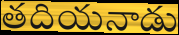
తదియనాడు